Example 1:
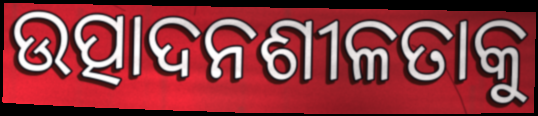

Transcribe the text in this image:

ଉତ୍ପାଦନଶୀଳତାକୁ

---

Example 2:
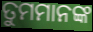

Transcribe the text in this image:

ତୁମମାନଙ୍କ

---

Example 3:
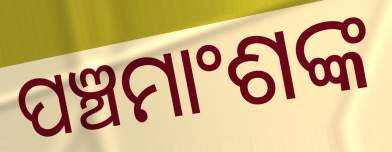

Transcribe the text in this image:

ପଞ୍ଚମାଂଶଙ୍କ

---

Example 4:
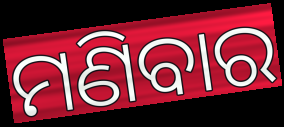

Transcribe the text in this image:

ମଣିବାର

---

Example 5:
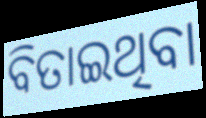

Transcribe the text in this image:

ବିତାଇଥିବା